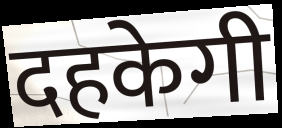
दहकेगी